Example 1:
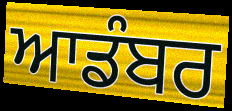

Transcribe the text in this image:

ਆਡੰਬਰ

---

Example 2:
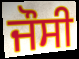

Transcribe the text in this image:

ਜੌਸੀ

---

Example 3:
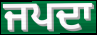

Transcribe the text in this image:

ਜਪਦਾ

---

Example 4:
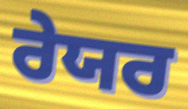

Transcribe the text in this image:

ਰੇਯਰ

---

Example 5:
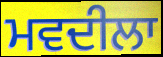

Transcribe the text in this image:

ਮਵਦੀਲਾ